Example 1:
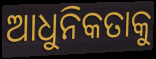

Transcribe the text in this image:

ଆଧୁନିକତାକୁ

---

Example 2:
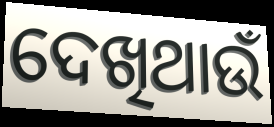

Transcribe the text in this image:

ଦେଖିଥାଉଁ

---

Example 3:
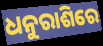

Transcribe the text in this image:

ଧନୁରାଶିରେ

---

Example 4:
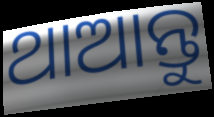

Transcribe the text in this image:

ଥାଆନ୍ତୁ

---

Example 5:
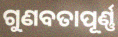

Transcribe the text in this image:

ଗୁଣବତାପୂର୍ଣ୍ଣ